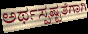
ಅರ್ಥಸ್ಪಷ್ಟತೆಗಾಗಿ